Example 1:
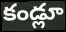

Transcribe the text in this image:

కండ్లూ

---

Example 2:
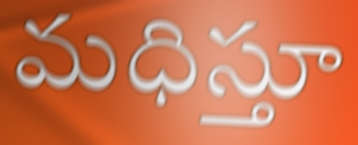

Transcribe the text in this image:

మధిస్తూ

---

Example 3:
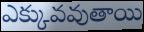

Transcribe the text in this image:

ఎక్కువవుతాయి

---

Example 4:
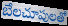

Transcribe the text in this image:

బేలచూపులతో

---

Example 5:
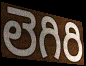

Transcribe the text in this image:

లెగిరి